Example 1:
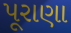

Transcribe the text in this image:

પૂરાણા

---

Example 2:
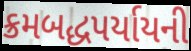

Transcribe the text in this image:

ક્રમબદ્ધપર્યાયની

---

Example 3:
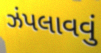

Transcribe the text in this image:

ઝંપલાવવું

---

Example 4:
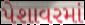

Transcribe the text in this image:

પેશાવરમાં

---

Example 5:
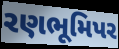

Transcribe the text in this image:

રણભૂમિપર